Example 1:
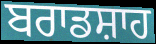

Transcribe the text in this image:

ਬਰਾਡਸ਼ਾਹ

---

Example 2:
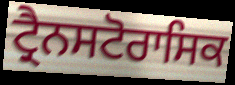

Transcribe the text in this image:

ਟ੍ਰੈਨਸਟੋਰਾਸਿਕ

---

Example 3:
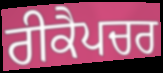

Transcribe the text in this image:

ਰੀਕੈਪਚਰ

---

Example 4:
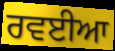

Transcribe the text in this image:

ਰਵਈਆ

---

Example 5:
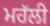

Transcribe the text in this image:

ਮਹੱਲੀ